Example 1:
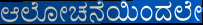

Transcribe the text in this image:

ಆಲೋಚನೆಯಿಂದಲೇ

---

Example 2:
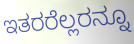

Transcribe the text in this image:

ಇತರರೆಲ್ಲರನ್ನೂ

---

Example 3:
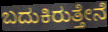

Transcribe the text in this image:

ಬದುಕಿರುತ್ತೇನೆ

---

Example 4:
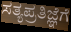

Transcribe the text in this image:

ಸತ್ಯಪ್ರತಿಜ್ಞೆಗೆ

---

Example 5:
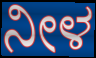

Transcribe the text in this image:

ನೀಳ